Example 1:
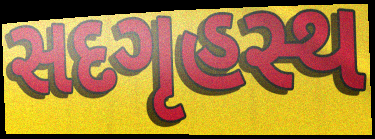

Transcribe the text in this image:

સદગૃહસ્થ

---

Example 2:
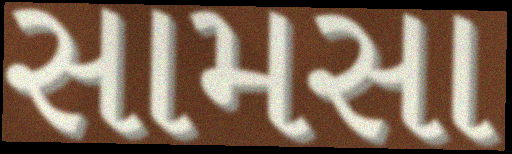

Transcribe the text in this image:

સામસા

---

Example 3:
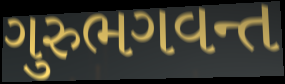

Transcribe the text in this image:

ગુરુભગવન્ત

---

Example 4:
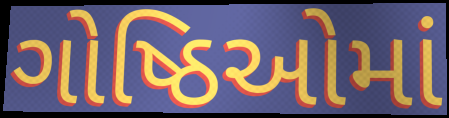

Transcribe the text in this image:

ગોષ્ઠિઓમાં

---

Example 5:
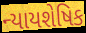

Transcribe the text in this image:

ન્યાયશેષિક